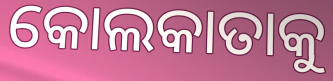
କୋଲକାତାକୁ